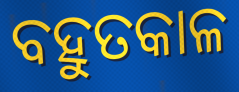
ବହୁତକାଳ